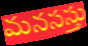
మనసస్తు